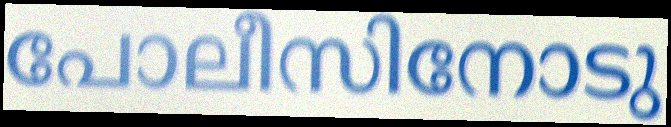
പോലീസിനോടു